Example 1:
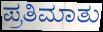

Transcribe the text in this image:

ಪ್ರತಿಮಾತು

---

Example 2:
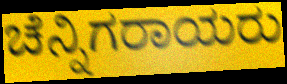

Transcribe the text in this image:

ಚೆನ್ನಿಗರಾಯರು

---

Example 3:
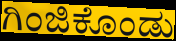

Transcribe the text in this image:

ಗಿಂಜಿಕೊಂಡು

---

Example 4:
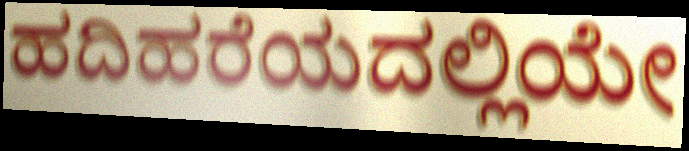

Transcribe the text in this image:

ಹದಿಹರೆಯದಲ್ಲಿಯೇ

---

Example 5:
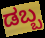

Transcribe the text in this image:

ಡಬ್ಬ